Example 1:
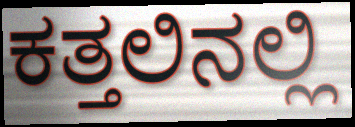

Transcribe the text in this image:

ಕತ್ತಲಿನಲ್ಲಿ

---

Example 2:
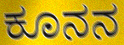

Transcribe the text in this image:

ಕೂನನ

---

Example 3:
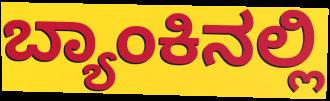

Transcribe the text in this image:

ಬ್ಯಾಂಕಿನಲ್ಲಿ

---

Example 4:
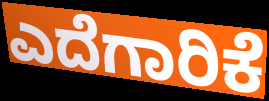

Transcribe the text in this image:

ಎದೆಗಾರಿಕೆ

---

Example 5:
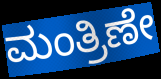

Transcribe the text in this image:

ಮಂತ್ರಿಣೇ